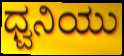
ಧ್ವನಿಯು